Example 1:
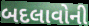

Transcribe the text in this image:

બદલાવોની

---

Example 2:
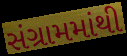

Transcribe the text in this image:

સંગ્રામમાંથી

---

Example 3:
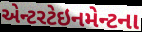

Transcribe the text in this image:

એન્ટરટેઇનમેન્ટના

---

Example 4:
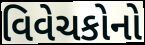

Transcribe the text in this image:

વિવેચકોનો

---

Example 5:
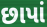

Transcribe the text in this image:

છાપાં